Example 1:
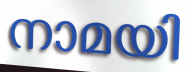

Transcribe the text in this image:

നാമയി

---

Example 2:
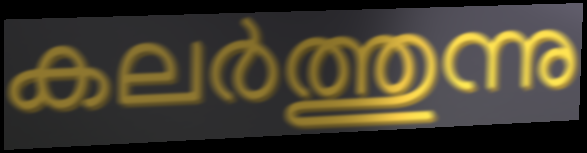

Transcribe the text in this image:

കലർത്തുന്നു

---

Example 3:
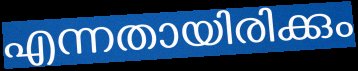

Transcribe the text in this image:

എന്നതായിരിക്കും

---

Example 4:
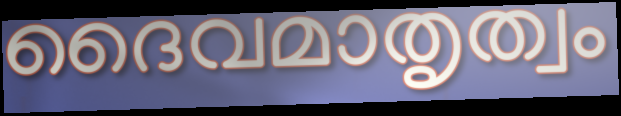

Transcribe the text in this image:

ദൈവമാതൃത്വം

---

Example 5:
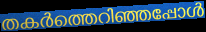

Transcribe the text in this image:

തകർത്തെറിഞ്ഞപ്പോൾ